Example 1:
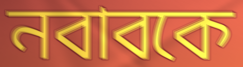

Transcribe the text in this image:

নবাবকে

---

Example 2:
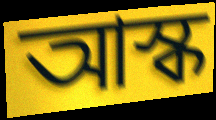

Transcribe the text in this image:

আস্ক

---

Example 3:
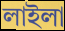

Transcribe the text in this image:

লাইলা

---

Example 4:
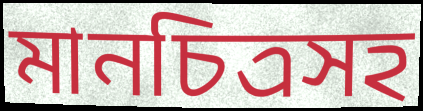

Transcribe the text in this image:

মানচিত্রসহ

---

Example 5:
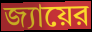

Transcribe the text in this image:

জ্যায়ের